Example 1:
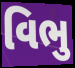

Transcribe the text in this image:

વિભુ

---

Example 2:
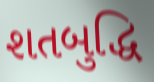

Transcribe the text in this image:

શતબુદ્ધિ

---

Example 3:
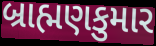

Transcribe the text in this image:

બ્રાહ્મણકુમાર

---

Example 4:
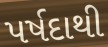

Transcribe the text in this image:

પર્ષદાથી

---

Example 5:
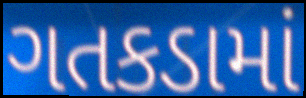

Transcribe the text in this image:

ગતકડામાં